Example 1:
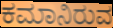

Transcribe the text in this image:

ಕಮಾನಿರುವ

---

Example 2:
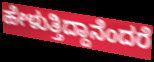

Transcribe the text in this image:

ಹೇಳುತ್ತಿದ್ದಾನೆಂದರೆ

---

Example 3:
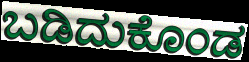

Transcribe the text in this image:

ಬಡಿದುಕೊಂಡ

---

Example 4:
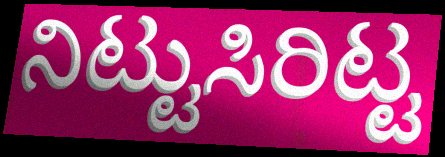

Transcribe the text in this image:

ನಿಟ್ಟುಸಿರಿಟ್ಟ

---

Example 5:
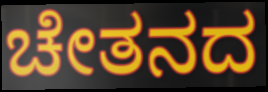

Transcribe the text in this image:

ಚೇತನದ